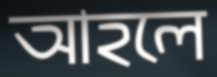
আহলে